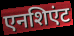
एनशिएंट